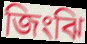
জিংঝি